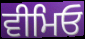
ਵੀਮਿਓ